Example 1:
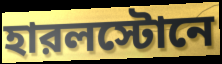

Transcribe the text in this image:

হারলস্টোনে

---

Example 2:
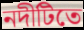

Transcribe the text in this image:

নদীটিতে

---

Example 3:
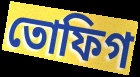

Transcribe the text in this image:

তোফিগ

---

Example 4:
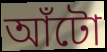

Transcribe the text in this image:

আঁটো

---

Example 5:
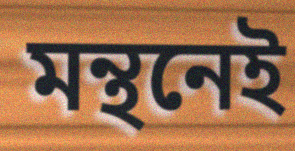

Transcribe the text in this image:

মন্থনেই